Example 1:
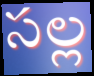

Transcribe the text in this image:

సల్ల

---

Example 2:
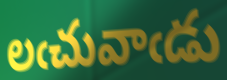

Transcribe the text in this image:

లఁచువాఁడు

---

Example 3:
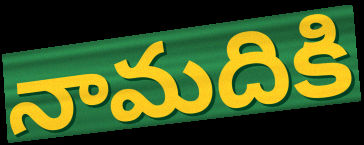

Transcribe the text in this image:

నామదికి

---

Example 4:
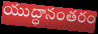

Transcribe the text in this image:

యుద్ధానంతరం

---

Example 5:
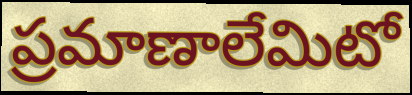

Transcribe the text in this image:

ప్రమాణాలేమిటో